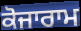
ਕੋਜਾਰਾਮ